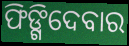
ଫିଙ୍ଗିଦେବାର